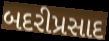
બદરીપ્રસાદ